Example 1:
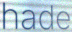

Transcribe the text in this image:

hade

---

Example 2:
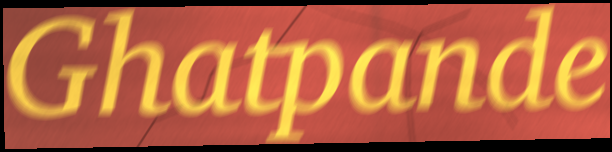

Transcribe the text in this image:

Ghatpande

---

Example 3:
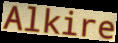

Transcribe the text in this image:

Alkire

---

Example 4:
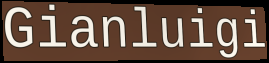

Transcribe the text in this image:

Gianluigi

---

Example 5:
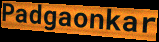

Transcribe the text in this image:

Padgaonkar